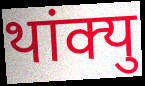
थांक्यु